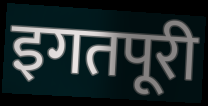
इगतपूरी